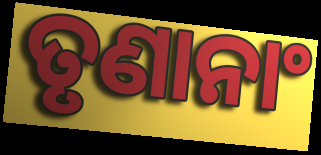
ତୃଣାନାଂ